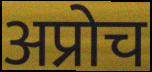
अप्रोच